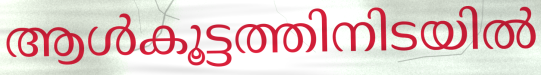
ആൾകൂട്ടത്തിനിടയിൽ